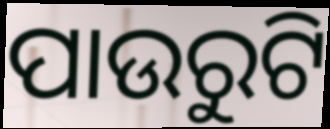
ପାଉରୁଟି